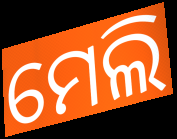
ମେଲି